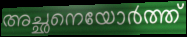
അച്ഛനെയോർത്ത്